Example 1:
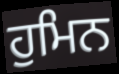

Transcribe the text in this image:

ਹੁਮਿਨ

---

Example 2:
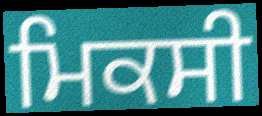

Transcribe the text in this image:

ਮਿਕਸੀ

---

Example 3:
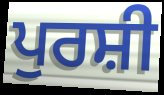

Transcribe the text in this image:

ਪੁਰਸ਼ੀ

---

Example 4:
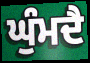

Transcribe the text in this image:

ਘੁੰਮਦੈ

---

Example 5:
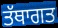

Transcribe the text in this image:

ਤੱਥਾਗਤ